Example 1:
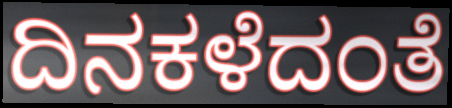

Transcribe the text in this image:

ದಿನಕಳೆದಂತೆ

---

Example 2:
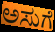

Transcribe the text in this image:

ಅಸುಗೆ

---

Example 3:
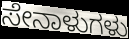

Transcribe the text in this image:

ಸೇನಾಳುಗಳು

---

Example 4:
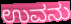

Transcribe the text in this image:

ಉವನು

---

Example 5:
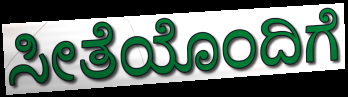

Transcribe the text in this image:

ಸೀತೆಯೊಂದಿಗೆ